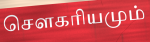
சௌகரியமும்